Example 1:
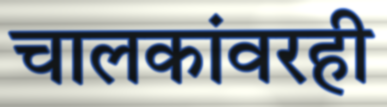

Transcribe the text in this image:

चालकांवरही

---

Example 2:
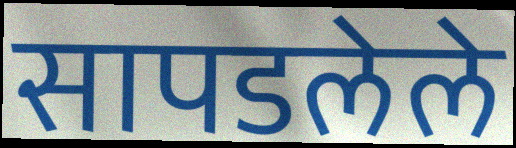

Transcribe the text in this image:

सापडलेले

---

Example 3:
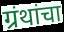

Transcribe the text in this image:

ग्रंथांचा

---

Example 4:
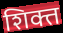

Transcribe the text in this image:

शिक्त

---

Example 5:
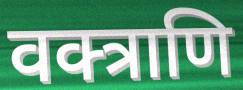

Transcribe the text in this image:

वक्त्राणि